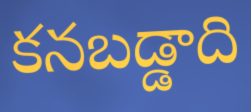
కనబడ్డాది